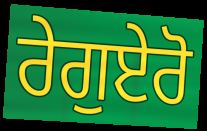
ਰੇਗੁਏਰੋ